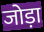
जोड़ा